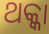
ଥକ୍କା